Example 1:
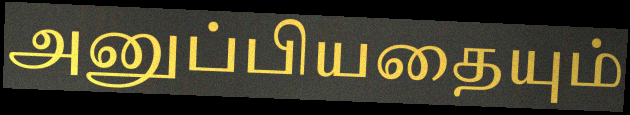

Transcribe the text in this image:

அனுப்பியதையும்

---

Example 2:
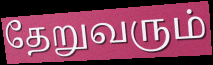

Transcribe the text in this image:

தேறுவரும்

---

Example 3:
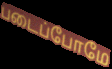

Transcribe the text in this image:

படைப்போமே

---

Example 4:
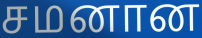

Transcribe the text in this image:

சமனான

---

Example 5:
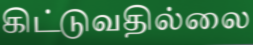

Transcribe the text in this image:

கிட்டுவதில்லை